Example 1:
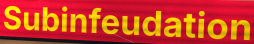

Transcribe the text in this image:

Subinfeudation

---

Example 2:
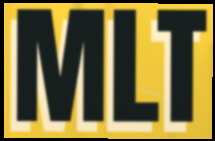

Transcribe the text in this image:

MLT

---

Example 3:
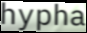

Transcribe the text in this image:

hypha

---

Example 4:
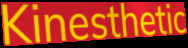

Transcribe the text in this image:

Kinesthetic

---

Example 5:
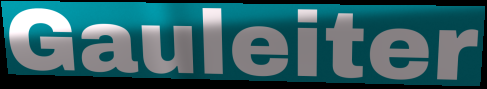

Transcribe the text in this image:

Gauleiter